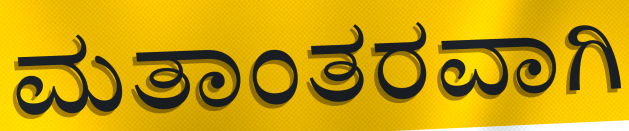
ಮತಾಂತರವಾಗಿ